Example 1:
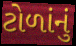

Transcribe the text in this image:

ટોળાંનું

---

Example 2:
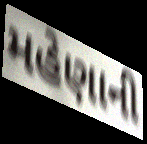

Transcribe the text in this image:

મહેણાની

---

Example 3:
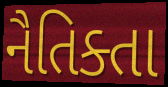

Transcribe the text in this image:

નૈતિક્તા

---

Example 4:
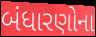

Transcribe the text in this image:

બંધારણોના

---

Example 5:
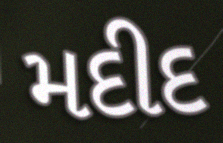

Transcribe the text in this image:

મદીદ